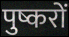
पुष्करों